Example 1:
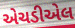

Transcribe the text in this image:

એચડીએલ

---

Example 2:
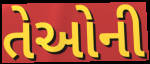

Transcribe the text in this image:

તેઓની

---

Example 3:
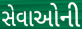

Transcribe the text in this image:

સેવાઓની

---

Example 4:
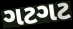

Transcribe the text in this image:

ગટગટ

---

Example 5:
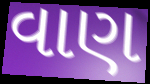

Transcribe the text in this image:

વાણ